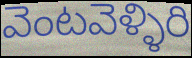
వెంటవెళ్ళిరి